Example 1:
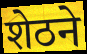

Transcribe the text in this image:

शेठने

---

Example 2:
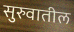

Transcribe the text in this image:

सुरुवातील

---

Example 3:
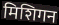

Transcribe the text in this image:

मिशिगन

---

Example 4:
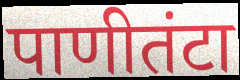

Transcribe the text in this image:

पाणीतंटा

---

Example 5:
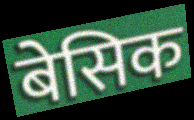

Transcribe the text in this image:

बेसिक